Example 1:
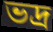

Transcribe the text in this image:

ভদ্র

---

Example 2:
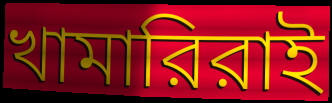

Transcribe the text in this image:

খামারিরাই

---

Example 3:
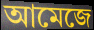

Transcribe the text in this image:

আমেজে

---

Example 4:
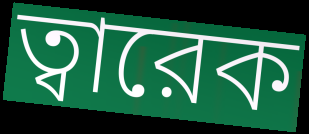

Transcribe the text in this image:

ত্বারেক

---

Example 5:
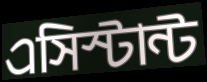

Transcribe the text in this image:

এসিস্টান্ট